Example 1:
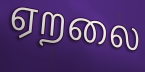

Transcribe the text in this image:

ஏறலை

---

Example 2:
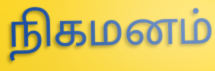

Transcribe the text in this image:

நிகமனம்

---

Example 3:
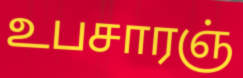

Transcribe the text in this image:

உபசாரஞ்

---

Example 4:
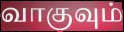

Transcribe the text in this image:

வாகுவும்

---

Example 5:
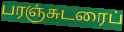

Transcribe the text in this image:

பரஞ்சுடரைப்